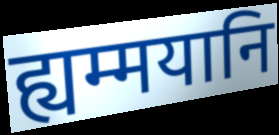
ह्यम्मयानि